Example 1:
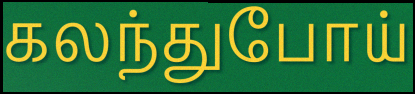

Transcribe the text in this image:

கலந்துபோய்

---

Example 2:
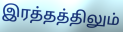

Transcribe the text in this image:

இரத்தத்திலும்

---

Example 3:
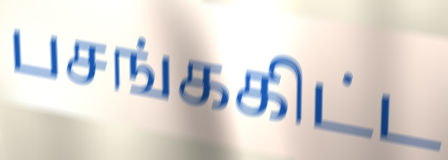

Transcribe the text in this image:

பசங்ககிட்ட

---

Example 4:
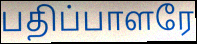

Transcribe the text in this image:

பதிப்பாளரே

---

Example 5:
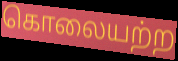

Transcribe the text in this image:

கொலையற்ற